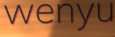
wenyu